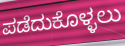
ಪಡೆದುಕೊಳ್ಳಲು